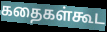
கதைகள்கூட